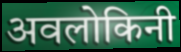
अवलोकिनी